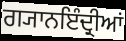
ਗ੍ਯਾਨਇੰਦ੍ਰੀਆਂ